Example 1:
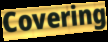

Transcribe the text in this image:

Covering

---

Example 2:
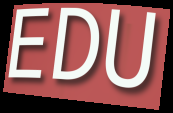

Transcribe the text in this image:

EDU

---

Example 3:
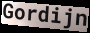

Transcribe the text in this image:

Gordijn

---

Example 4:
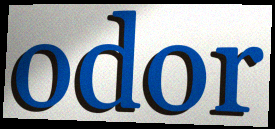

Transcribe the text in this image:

odor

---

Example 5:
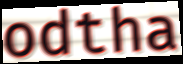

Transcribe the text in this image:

odtha